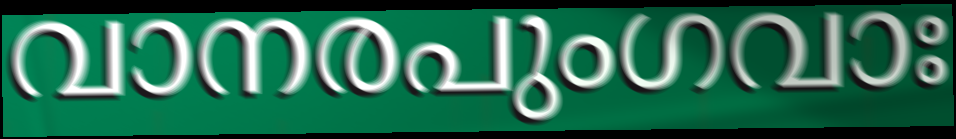
വാനരപുംഗവാഃ